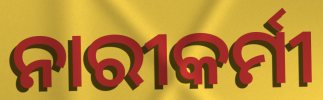
ନାରୀକର୍ମୀ